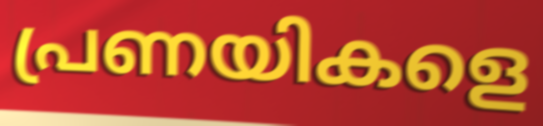
പ്രണയികളെ